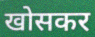
खोसकर